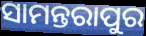
ସାମନ୍ତରାପୁର